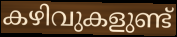
കഴിവുകളുണ്ട്